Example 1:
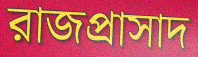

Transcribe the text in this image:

রাজপ্রাসাদ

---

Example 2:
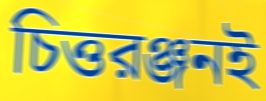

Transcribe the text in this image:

চিত্তরঞ্জনই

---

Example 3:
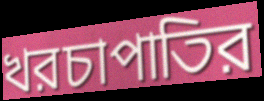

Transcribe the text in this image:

খরচাপাতির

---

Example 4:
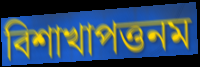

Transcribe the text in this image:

বিশাখাপত্তনম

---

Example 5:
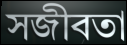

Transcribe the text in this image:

সজীবতা